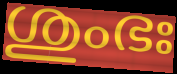
ശുംഭഃ